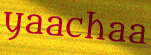
yaachaa